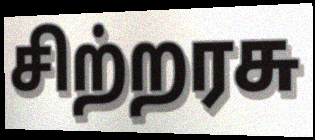
சிற்றரசு